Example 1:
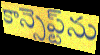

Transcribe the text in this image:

కాన్సెప్ట్‌ను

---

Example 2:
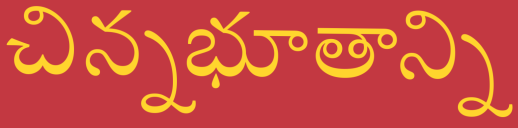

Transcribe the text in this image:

చిన్నభూతాన్ని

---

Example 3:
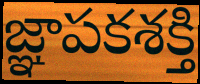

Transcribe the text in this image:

జ్ఞాపకశక్తి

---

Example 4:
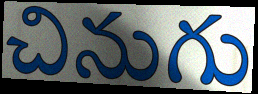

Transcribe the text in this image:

చినుగు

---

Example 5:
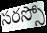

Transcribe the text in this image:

సరస్సో